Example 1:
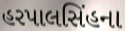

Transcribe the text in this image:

હરપાલસિંહના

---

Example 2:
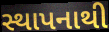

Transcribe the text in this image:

સ્થાપનાથી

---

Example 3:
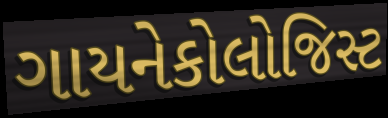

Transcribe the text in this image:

ગાયનેકોલોજિસ્ટ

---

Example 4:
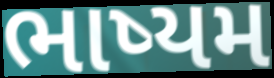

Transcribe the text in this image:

ભાષ્યમ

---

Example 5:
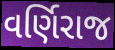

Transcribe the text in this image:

વર્ણિરાજ